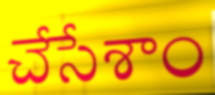
చేసేశాం